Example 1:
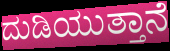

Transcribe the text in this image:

ದುಡಿಯುತ್ತಾನೆ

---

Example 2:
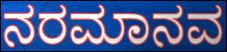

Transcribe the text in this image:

ನರಮಾನವ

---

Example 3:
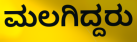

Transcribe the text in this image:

ಮಲಗಿದ್ದರು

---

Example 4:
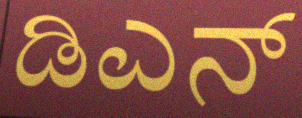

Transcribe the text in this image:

ಡಿಎನ್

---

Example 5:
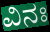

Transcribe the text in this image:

ವಿನಃ